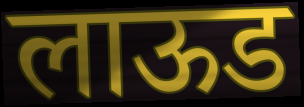
लाऊड